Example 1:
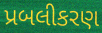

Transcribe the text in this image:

પ્રબલીકરણ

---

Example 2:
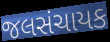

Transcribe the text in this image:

જલસંચાયક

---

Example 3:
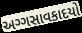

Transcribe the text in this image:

અગ્ગસાવકાદયો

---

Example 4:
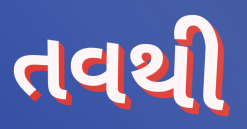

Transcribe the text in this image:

તવથી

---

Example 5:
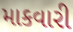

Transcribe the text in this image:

માકવારી